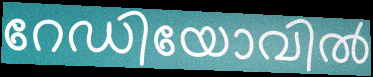
റേഡിയോവിൽ